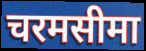
चरमसीमा